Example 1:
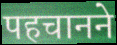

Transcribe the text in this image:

पहचानने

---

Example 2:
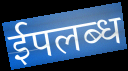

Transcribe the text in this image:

ईपलब्ध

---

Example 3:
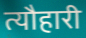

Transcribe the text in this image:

त्यौहारी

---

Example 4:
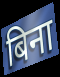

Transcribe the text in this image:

बिना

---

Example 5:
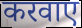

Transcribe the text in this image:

करवाए